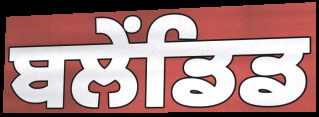
ਬਲੇਂਡਿਡ